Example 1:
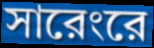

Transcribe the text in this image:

সারেংরে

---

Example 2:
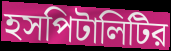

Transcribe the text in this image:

হসপিটালিটির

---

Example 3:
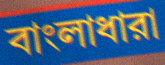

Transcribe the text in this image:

বাংলাধারা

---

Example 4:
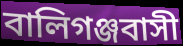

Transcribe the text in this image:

বালিগঞ্জবাসী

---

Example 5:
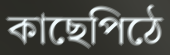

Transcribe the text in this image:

কাছেপিঠে